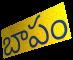
బాపం